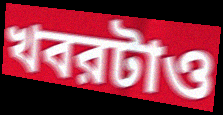
খবরটাও